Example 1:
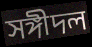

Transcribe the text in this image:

সঙ্গীদল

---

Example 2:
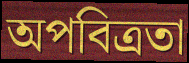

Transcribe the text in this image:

অপবিত্রতা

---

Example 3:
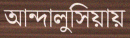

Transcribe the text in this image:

আন্দালুসিয়ায়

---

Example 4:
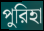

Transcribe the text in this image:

পুরিহা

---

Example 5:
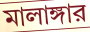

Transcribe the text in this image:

মালাঙ্গার